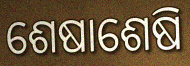
ଶେଷାଶେଷି